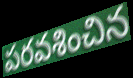
పరవశించిన